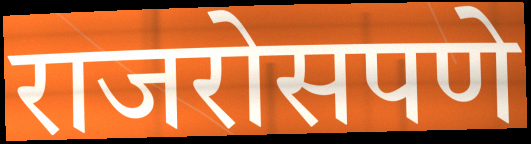
राजरोसपणे